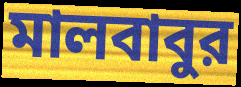
মালবাবুর